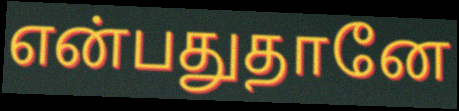
என்பதுதானே